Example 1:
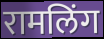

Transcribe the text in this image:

रामलिंग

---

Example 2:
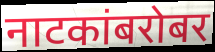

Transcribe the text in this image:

नाटकांबरोबर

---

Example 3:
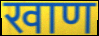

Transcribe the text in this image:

खाण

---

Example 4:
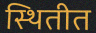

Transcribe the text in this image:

स्थितीत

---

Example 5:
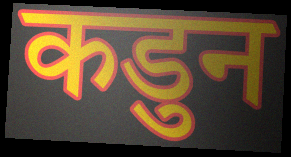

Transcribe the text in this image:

कडुन